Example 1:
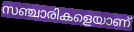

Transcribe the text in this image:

സഞ്ചാരികളെയാണ്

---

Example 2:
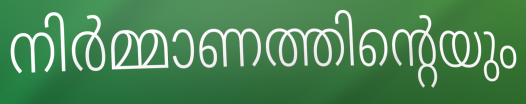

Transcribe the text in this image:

നിർമ്മാണത്തിന്റെയും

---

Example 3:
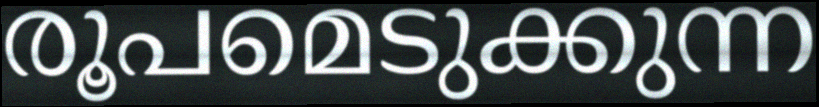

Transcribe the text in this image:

രൂപമെടുക്കുന്ന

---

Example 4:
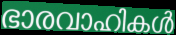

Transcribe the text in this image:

ഭാരവാഹികൾ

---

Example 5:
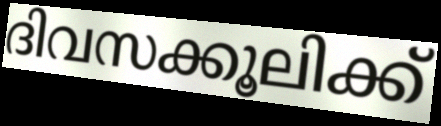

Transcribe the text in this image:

ദിവസക്കൂലിക്ക്